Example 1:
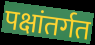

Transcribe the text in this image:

पक्षांतर्गत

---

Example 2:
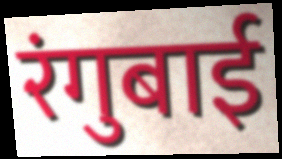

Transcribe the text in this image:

रंगुबाई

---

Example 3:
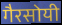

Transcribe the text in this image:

गैरसोयी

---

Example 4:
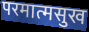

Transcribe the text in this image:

परमात्मसुख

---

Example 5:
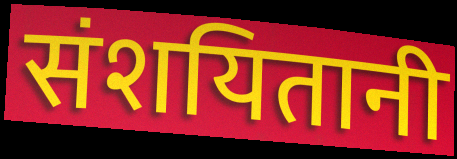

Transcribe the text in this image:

संशयितानी